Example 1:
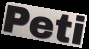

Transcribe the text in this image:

Peti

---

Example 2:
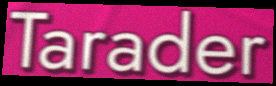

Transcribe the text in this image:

Tarader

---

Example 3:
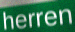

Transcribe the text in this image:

herren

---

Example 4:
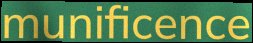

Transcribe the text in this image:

munificence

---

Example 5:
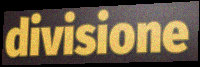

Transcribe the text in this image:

divisione